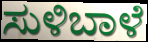
ಸುಳಿಬಾಳೆ